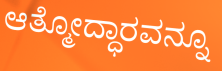
ಆತ್ಮೋದ್ಧಾರವನ್ನೂ